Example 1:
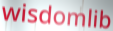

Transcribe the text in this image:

wisdomlib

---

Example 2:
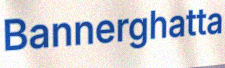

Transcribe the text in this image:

Bannerghatta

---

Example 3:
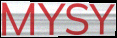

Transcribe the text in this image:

MYSY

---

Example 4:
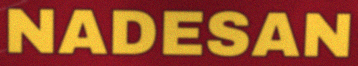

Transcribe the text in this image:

NADESAN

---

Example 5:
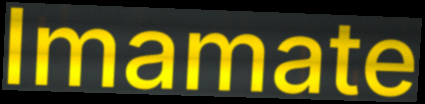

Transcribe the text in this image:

Imamate